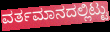
ವರ್ತಮಾನದಲ್ಲಿಟ್ಟು